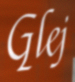
Glej